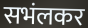
सभंलकर